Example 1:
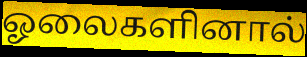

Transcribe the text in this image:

ஓலைகளினால்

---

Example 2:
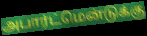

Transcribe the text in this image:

அபார்ட்மென்டுக்கு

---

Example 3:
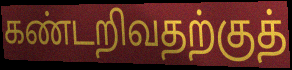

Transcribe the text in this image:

கண்டறிவதற்குத்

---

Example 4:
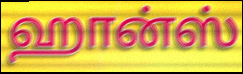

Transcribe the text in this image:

ஹான்ஸ்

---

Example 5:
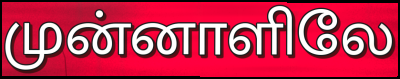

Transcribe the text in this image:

முன்னாளிலே